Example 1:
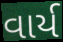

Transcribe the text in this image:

વાર્ય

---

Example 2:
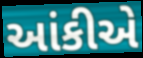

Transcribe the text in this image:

આંકીએ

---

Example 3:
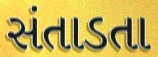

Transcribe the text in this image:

સંતાડતા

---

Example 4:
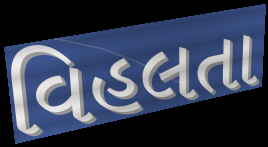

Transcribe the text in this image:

વિહલતા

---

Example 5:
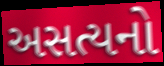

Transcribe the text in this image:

અસત્યનો